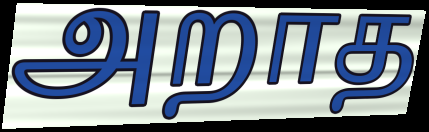
அறாத